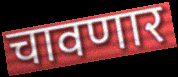
चावणार